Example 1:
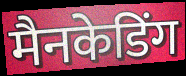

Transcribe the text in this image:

मैनकेडिंग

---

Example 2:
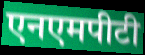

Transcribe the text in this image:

एनएमपीटी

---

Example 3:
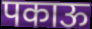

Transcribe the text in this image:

पकाऊ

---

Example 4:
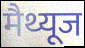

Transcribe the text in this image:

मैथ्यूज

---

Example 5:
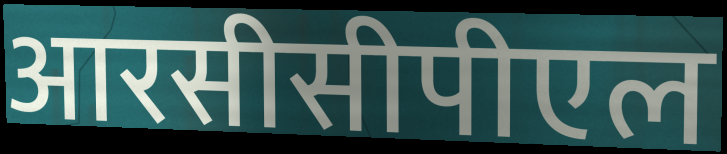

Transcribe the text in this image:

आरसीसीपीएल